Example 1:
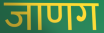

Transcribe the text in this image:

जाणग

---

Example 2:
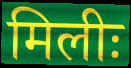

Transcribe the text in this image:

मिलीः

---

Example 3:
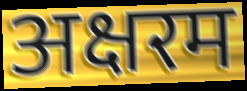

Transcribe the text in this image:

अक्षरम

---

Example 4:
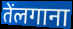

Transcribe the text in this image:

तेंलगाना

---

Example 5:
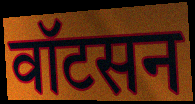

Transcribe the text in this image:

वॉटसन